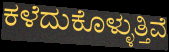
ಕಳೆದುಕೊಳ್ಳುತ್ತಿವೆ